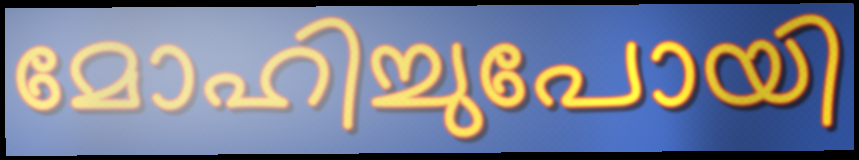
മോഹിച്ചുപോയി